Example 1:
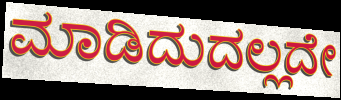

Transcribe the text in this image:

ಮಾಡಿದುದಲ್ಲದೇ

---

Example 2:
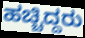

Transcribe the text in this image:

ಹಚ್ಚಿದ್ದರು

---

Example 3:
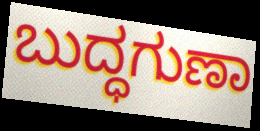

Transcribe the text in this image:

ಬುದ್ಧಗುಣಾ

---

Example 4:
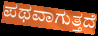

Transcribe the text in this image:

ಪಥವಾಗುತ್ತದೆ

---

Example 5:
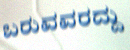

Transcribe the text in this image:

ಬರುವವರದ್ದು